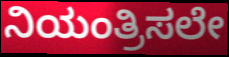
ನಿಯಂತ್ರಿಸಲೇ